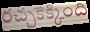
రచ్చకెక్కింది